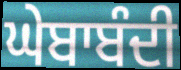
ਘੇਬਾਬੰਦੀ